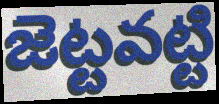
జెట్టవట్టి